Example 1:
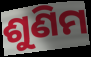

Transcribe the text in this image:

ଶୁଣିମ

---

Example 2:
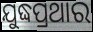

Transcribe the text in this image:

ଯୁଦ୍ଧପ୍ରଥାର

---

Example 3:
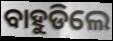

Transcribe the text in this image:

ବାହୁଡିଲେ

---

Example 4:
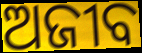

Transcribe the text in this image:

ଅଜୀବ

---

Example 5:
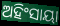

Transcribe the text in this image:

ଅହିଂସାୟା